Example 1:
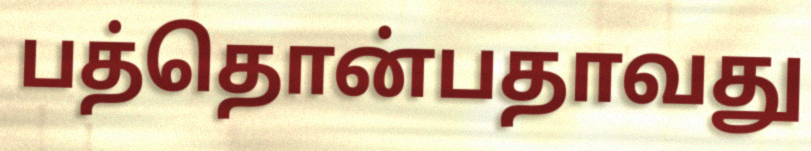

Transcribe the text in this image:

பத்தொன்பதாவது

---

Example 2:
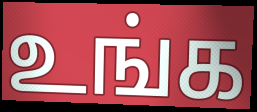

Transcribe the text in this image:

உங்க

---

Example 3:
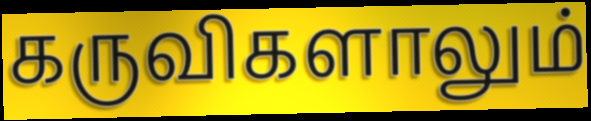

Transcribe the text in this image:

கருவிகளாலும்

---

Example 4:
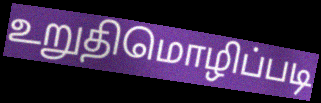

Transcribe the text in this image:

உறுதிமொழிப்படி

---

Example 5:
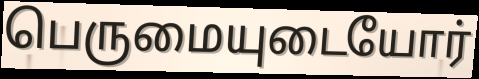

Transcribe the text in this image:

பெருமையுடையோர்